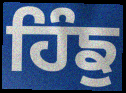
ਹਿੰਙੁ